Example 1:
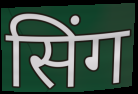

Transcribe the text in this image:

सिंग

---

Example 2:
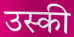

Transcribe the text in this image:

उस्‍की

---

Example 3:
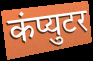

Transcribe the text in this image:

कंप्युटर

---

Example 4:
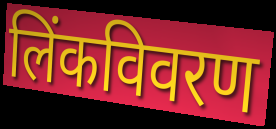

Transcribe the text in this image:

लिंकविवरण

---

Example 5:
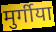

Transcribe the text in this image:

मुर्गीया